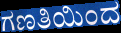
ಗಣತಿಯಿಂದ